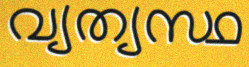
വ്യത്യസ്ഥ